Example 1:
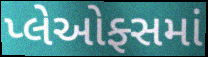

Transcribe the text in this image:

પ્લેઓફ્સમાં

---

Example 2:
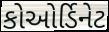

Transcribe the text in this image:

કોઓર્ડિનેટ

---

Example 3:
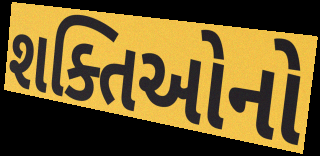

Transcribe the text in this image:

શક્તિઓનો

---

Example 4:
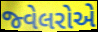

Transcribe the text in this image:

જ્વેલરોએ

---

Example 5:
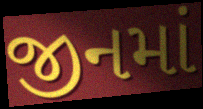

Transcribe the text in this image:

જીનમાં